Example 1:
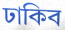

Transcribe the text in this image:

ঢাকিব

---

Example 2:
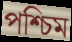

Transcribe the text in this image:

পশ্চিম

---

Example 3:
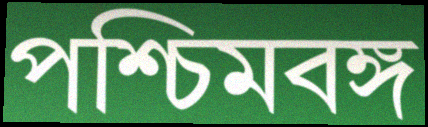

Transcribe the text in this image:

পশ্চিমবঙ্গ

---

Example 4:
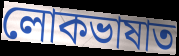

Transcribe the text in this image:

লোকভাষাত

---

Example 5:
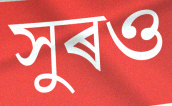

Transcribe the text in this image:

সুৰও